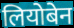
लियोबेन